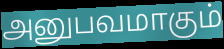
அனுபவமாகும்